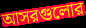
আসরগুলোর